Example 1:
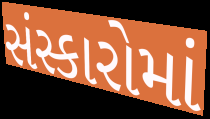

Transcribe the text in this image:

સંસ્કારોમાં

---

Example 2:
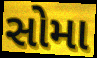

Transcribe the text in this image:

સોમા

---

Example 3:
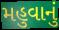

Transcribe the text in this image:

મહુવાનું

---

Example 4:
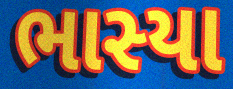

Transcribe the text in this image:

ભાસ્યા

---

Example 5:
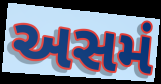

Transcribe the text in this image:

અસમં